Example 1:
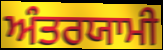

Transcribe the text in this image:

ਅੰਤਰਯਾਮੀ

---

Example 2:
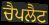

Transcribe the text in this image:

ਚੈਪਲੈਟ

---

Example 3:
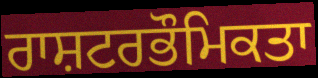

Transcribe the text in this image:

ਰਾਸ਼ਟਰਭੌਮਿਕਤਾ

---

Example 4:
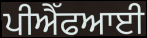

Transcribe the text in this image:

ਪੀਐੱਫਆਈ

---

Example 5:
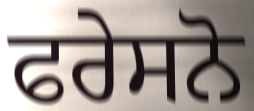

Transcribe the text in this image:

ਫਰੇਸਨੋ